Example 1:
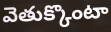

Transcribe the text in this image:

వెతుక్కొంటా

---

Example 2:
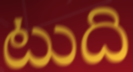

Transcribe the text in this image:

టుది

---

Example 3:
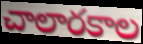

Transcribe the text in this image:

చాలారకాల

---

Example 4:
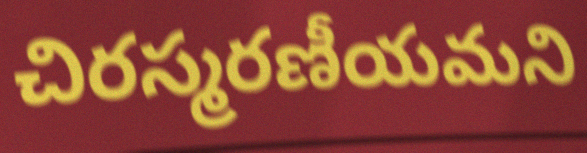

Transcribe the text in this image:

చిరస్మరణీయమని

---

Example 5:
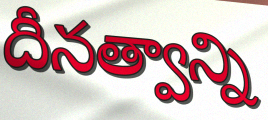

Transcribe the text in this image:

దీనత్వాన్ని